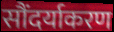
सौंदर्याकरण